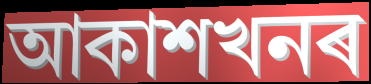
আকাশখনৰ